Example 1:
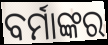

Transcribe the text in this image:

ବର୍ମାଙ୍କର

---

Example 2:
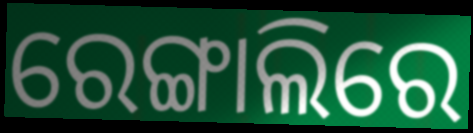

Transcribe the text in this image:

ରେଙ୍ଗାଲିରେ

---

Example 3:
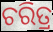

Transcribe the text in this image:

ଚରିତ୍ର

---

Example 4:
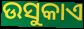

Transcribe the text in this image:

ଉସୁକାଏ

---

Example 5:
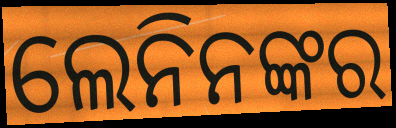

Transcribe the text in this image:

ଲେନିନଙ୍କର